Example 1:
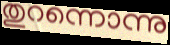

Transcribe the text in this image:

തുറന്നൊന്നു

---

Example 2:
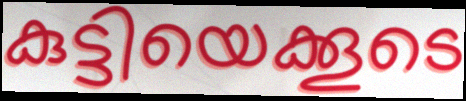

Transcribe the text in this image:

കുട്ടിയെക്കൂടെ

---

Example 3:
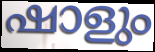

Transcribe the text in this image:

ഷാളും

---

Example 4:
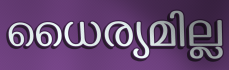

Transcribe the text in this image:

ധൈര്യമില്ല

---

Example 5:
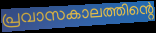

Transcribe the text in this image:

പ്രവാസകാലത്തിന്റെ